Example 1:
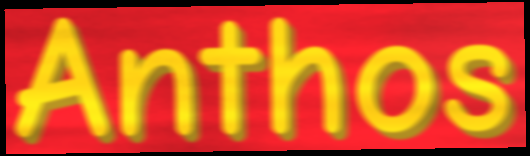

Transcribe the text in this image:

Anthos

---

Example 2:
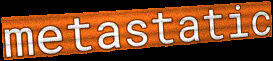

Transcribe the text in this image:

metastatic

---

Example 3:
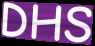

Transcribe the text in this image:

DHS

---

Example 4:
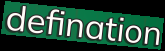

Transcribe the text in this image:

defination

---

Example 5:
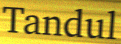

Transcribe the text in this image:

Tandul